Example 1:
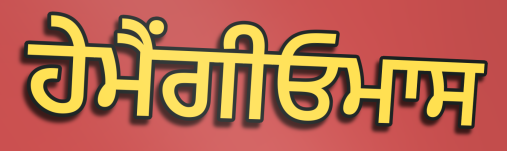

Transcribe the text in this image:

ਹੇਮੈਂਗੀਓਮਾਸ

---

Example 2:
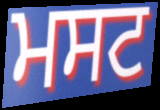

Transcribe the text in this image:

ਮਸਟ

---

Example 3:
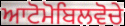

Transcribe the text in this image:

ਆਟੋਮੋਬਿਲਵੋਚੇ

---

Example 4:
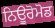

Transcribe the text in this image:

ਨਿਊਰੋਮੋਡ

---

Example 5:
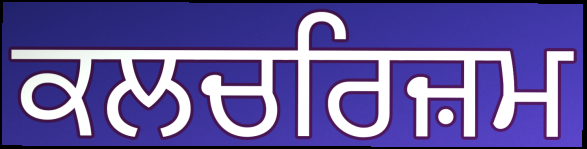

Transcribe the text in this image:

ਕਲਚਰਿਜ਼ਮ